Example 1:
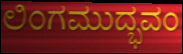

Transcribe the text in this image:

ಲಿಂಗಮುದ್ಭವಂ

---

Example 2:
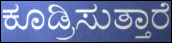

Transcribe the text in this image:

ಕೂಡ್ರಿಸುತ್ತಾರೆ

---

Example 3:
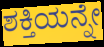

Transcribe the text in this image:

ಶಕ್ತಿಯನ್ನೇ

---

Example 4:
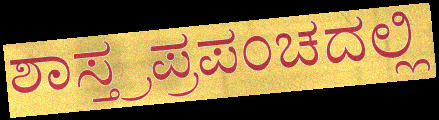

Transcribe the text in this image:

ಶಾಸ್ತ್ರಪ್ರಪಂಚದಲ್ಲಿ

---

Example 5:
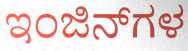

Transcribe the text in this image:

ಇಂಜಿನ್‌ಗಳ